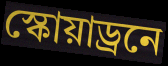
স্কোয়াড্রনে